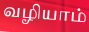
வழியாம்